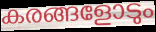
കരങ്ങളോടും